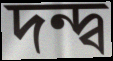
দন্দ্ব